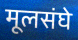
मूलसंघे